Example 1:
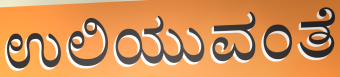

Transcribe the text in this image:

ಉಲಿಯುವಂತೆ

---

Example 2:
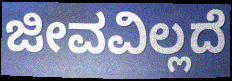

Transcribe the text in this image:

ಜೀವವಿಲ್ಲದೆ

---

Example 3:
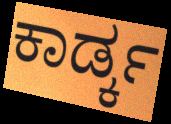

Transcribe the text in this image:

ಕಾರ್ಡ್ಕ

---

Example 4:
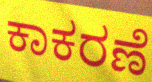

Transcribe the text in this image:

ಕಾಕರಣೆ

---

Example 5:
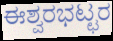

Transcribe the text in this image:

ಈಶ್ವರಭಟ್ಟರ